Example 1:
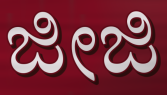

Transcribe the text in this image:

ಜೀಜಿ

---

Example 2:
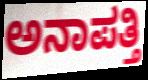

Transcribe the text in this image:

ಅನಾಪತ್ತಿ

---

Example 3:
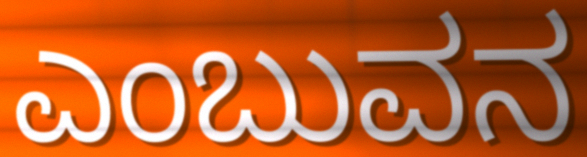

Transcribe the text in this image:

ಎಂಬುವನ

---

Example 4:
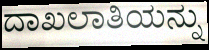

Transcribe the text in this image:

ದಾಖಲಾತಿಯನ್ನು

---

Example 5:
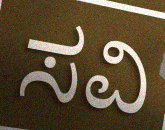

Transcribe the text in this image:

ಸವಿ